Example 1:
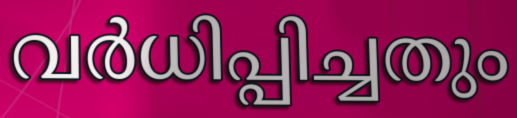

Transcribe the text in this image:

വർധിപ്പിച്ചതും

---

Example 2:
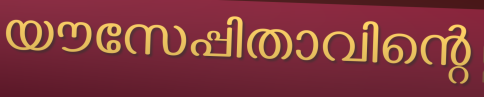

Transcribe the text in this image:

യൗസേപ്പിതാവിന്റെ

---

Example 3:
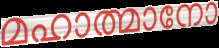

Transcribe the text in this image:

മഹാത്മാനോ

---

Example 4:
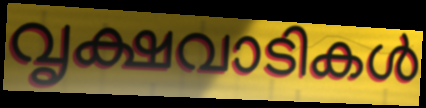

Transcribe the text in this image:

വൃക്ഷവാടികൾ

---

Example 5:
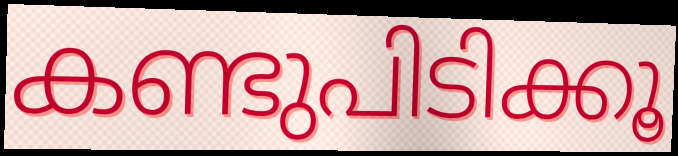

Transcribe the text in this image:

കണ്ടുപിടിക്കൂ